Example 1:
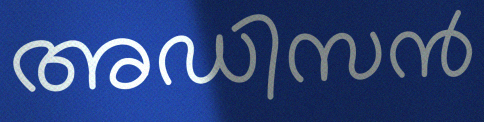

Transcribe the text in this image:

അഡിസൻ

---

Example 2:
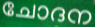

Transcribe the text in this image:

ചോദന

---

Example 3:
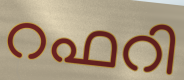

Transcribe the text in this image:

റഫറി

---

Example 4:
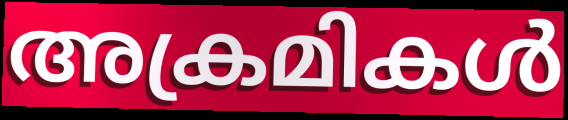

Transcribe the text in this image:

അക്രമികൾ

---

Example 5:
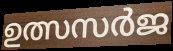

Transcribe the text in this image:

ഉത്സസർജ